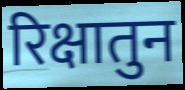
रिक्षातुन